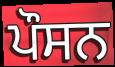
ਪੌਸਨ